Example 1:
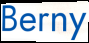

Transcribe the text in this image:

Berny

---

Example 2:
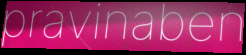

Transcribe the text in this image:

pravinaben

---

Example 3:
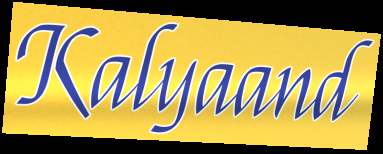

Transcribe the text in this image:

Kalyaand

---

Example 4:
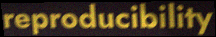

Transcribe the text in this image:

reproducibility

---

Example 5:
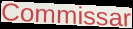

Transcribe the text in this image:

Commissar